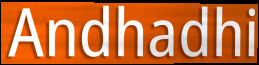
Andhadhi